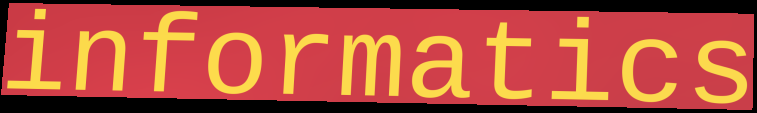
informatics